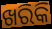
ଖରିକି